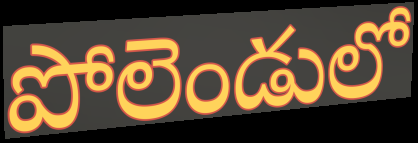
పోలెండులో